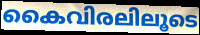
കൈവിരലിലൂടെ